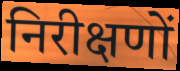
निरीक्षणों